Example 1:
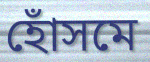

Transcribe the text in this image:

হোঁসমে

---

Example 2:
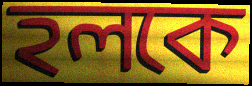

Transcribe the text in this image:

হলকে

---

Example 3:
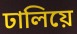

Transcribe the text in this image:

ঢালিয়ে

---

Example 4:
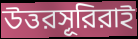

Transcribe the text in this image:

উত্তরসূরিরাই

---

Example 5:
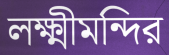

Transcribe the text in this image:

লক্ষ্মীমন্দির